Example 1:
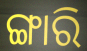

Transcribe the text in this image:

ଙ୍ଗାରି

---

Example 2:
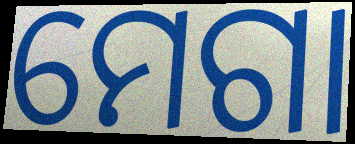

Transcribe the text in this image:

ମେଗା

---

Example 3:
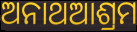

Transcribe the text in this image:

ଅନାଥଆଶ୍ରମ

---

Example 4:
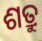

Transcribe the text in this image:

ଶତ୍ରୁ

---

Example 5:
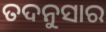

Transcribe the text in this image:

ତଦନୁସାର